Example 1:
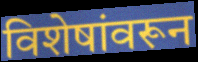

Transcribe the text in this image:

विशेषांवरून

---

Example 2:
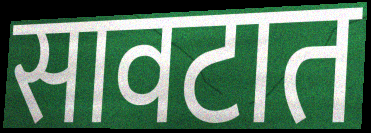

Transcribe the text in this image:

सावटात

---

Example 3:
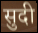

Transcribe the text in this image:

सुदी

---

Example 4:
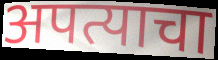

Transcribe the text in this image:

अपत्याचा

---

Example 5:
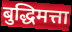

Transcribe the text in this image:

बुद्धिमत्ता